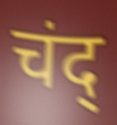
चंद्